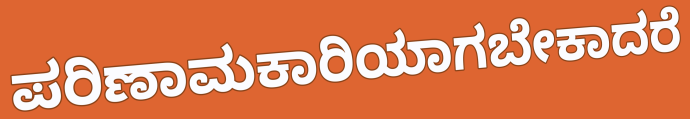
ಪರಿಣಾಮಕಾರಿಯಾಗಬೇಕಾದರೆ